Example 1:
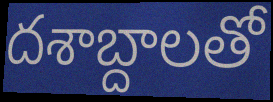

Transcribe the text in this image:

దశాబ్దాలతో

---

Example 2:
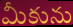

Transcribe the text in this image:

మీకును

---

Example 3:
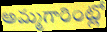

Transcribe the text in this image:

అమ్మగారింట్లో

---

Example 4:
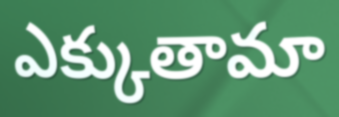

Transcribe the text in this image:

ఎక్కుతామా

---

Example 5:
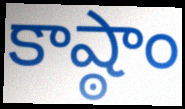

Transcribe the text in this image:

కాష్ఠాం